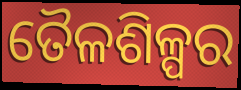
ତୈଳଶିଳ୍ପର